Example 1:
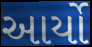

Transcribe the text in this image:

આર્યો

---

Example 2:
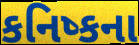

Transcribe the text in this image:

કનિષ્કના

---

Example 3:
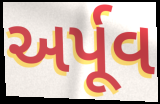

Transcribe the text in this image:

અર્પૂવ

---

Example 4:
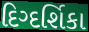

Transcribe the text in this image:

દિગ્દર્શિકા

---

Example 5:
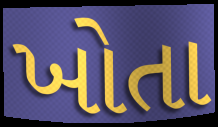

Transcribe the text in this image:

ખોતા